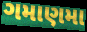
ગમાણમા